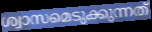
ശ്വാസമെടുക്കുന്നത്